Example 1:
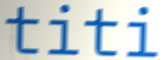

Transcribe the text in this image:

titi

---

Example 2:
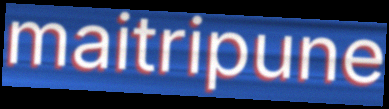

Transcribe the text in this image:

maitripune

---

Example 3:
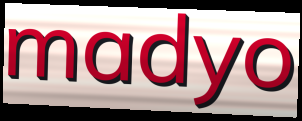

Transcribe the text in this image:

madyo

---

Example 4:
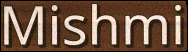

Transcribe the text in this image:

Mishmi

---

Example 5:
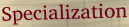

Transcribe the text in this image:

Specialization